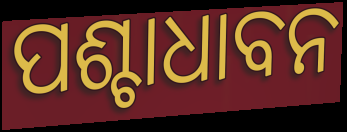
ପଶ୍ଚାଧାବନ